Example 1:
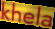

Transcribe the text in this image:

khela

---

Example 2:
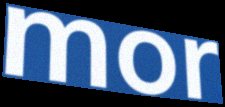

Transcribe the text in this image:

mor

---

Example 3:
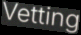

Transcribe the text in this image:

Vetting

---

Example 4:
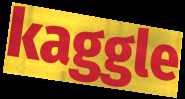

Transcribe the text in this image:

kaggle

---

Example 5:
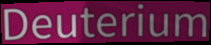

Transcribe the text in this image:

Deuterium